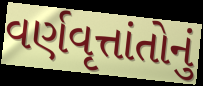
વર્ણવૃત્તાંતોનું